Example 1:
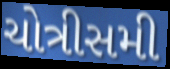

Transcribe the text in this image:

ચોત્રીસમી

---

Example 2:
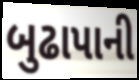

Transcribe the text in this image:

બુઢાપાની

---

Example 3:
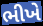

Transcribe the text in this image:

ભીખે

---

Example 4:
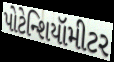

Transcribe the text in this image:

પોટેન્શિયૉમીટર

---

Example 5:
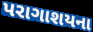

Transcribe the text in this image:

પરાગાશયના